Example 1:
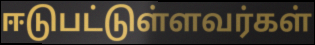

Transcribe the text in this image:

ஈடுபட்டுள்ளவர்கள்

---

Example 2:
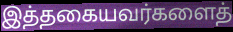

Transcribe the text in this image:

இத்தகையவர்களைத்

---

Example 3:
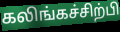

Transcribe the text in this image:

கலிங்கச்சிற்பி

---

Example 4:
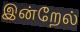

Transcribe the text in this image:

இன்றேல்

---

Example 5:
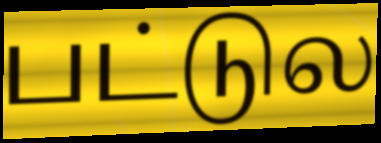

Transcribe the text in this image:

பட்டுல